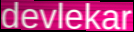
devlekar